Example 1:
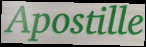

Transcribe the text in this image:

Apostille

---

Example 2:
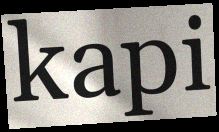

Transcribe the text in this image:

kapi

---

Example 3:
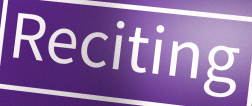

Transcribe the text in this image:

Reciting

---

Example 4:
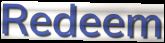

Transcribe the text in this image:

Redeem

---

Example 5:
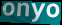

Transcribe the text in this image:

onyo